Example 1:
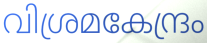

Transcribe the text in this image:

വിശ്രമകേന്ദ്രം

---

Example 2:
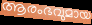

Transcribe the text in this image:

ആരംഭവുമായ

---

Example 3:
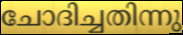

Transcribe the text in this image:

ചോദിച്ചതിന്നു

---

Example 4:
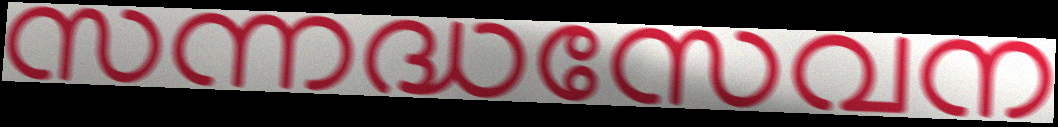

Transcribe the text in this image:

സന്നദ്ധസേവന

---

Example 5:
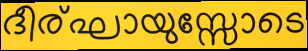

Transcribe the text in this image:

ദീര്ഘായുസ്സോടെ